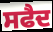
ਸਫੈਦ